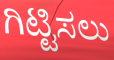
ಗಿಟ್ಟಿಸಲು